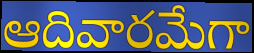
ఆదివారమేగా